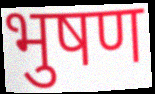
भुषण